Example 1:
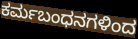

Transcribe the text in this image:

ಕರ್ಮಬಂಧನಗಳಿಂದ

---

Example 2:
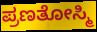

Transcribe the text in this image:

ಪ್ರಣತೋಸ್ಮಿ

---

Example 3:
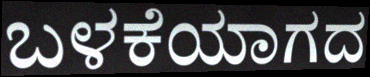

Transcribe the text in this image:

ಬಳಕೆಯಾಗದ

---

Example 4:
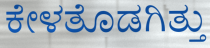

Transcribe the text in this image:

ಕೇಳತೊಡಗಿತ್ತು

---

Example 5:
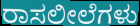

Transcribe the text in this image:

ರಾಸಲೀಲೆಗಳು